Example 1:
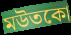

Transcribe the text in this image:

মউতকো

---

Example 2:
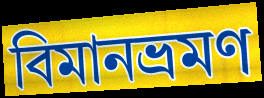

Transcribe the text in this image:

বিমানভ্রমণ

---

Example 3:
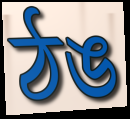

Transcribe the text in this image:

ঠঙ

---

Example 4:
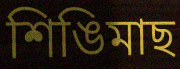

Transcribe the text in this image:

শিঙিমাছ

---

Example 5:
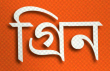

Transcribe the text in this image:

গ্রিন